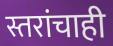
स्तरांचाही